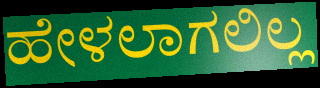
ಹೇಳಲಾಗಲಿಲ್ಲ